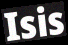
Isis